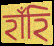
হাঁহি